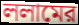
ললামের